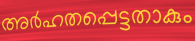
അർഹതപ്പെട്ടതാകും